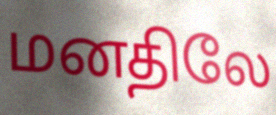
மனதிலே